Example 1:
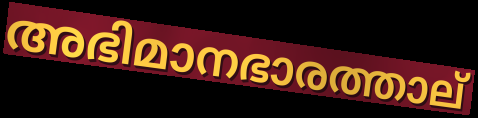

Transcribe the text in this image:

അഭിമാനഭാരത്താല്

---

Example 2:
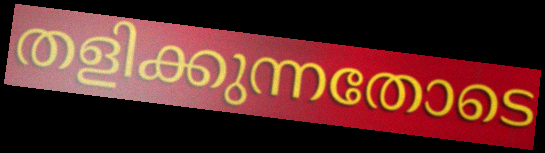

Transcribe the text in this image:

തളിക്കുന്നതോടെ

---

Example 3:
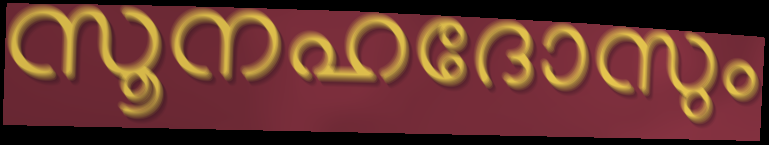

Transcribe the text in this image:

സൂനഹദോസും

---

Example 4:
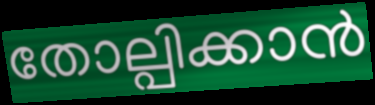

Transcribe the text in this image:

തോല്പിക്കാൻ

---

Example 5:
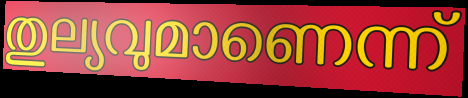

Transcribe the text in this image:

തുല്യവുമാണെന്ന്